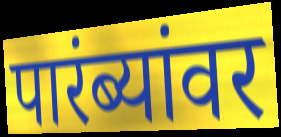
पारंब्यांवर